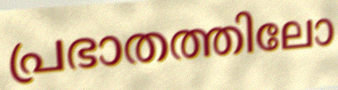
പ്രഭാതത്തിലോ